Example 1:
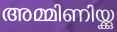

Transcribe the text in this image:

അമ്മിണിയ്ക്കു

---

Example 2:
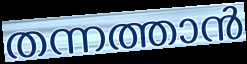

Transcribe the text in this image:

തന്നത്താൻ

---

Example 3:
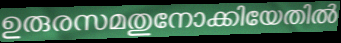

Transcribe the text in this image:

ഉരുരസമതുനോക്കിയേതിൽ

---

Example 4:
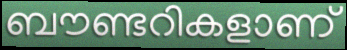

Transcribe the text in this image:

ബൗണ്ടറികളാണ്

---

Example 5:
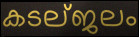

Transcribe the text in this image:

കടല്ജലം